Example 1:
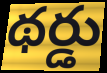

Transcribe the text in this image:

థర్డు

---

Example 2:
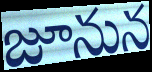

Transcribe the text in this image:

జూనున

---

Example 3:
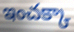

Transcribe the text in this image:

ఇంచక్కా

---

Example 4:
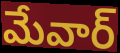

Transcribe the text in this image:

మేవార్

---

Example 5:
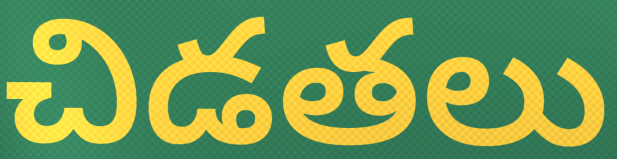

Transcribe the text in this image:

చిడతలు